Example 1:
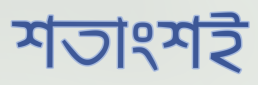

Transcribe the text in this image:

শতাংশই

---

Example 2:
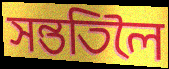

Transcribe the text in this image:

সন্ততিলৈ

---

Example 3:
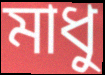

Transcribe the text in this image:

মাধু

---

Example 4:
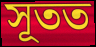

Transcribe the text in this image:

সূতত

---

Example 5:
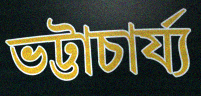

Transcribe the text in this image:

ভট্টাচাৰ্য্য